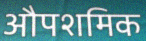
औपशमिक